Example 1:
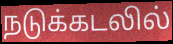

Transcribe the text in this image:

நடுக்கடலில்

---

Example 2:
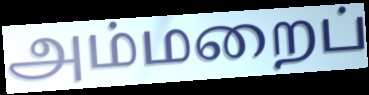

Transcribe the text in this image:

அம்மறைப்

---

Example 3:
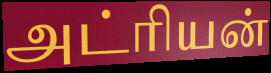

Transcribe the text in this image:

அட்ரியன்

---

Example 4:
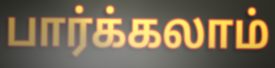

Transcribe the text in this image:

பார்க்கலாம்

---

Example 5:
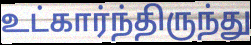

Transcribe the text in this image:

உட்கார்ந்திருந்து